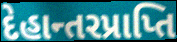
દેહાન્તરપ્રાપ્તિ